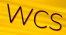
WCS